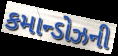
કમાન્ડોઝની